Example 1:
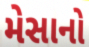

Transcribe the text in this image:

મેસાનો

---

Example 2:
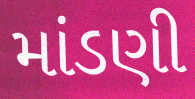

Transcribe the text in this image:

માંડણી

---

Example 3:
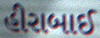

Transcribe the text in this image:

હીરાબાઈ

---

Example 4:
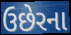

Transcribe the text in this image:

ઉછેરના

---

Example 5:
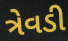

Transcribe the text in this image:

ત્રેવડી